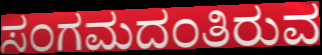
ಸಂಗಮದಂತಿರುವ